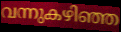
വന്നുകഴിഞ്ഞ